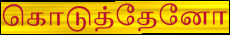
கொடுத்தேனோ